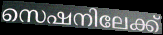
സെഷനിലേക്ക്